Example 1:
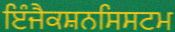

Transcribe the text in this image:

ਇੰਜੈਕਸ਼ਨਸਿਸਟਮ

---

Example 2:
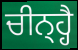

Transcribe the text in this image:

ਚੀਨ੍ਹ੍ਹੈ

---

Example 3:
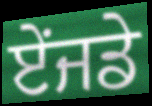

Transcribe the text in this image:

ਏਂਜਡੇ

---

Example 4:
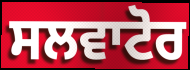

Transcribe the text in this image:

ਸਲਵਾਟੋਰ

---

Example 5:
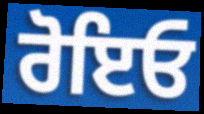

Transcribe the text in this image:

ਰੋਇਓ